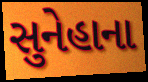
સુનેહાના